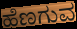
ಹೆಣಗುವ